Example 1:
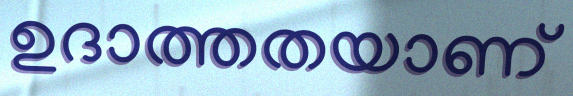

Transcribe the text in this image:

ഉദാത്തതയാണ്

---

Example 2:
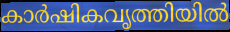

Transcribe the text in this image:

കാർഷികവൃത്തിയിൽ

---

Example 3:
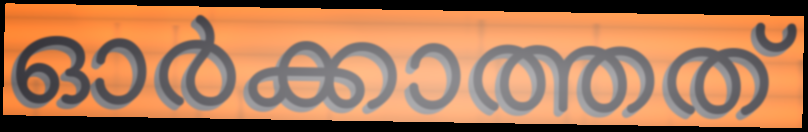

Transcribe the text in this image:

ഓർക്കാത്തത്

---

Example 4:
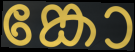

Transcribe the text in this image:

ങ്കോ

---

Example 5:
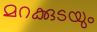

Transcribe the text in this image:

മറക്കുടയും